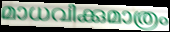
മാധവിക്കുമാത്രം